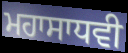
ਮਹਾਸਾਧਵੀ